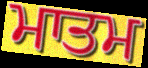
ਮਾਤਮ